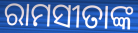
ରାମସୀତାଙ୍କ